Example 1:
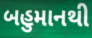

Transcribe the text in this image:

બહુમાનથી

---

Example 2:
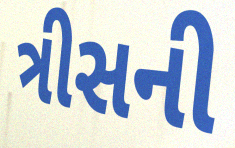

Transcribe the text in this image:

ત્રીસની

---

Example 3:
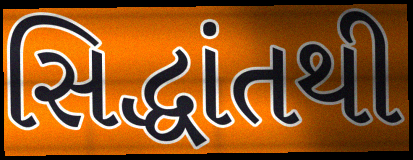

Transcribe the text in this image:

સિદ્ધાંતથી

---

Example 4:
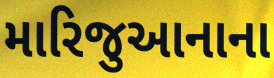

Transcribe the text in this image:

મારિજુઆનાના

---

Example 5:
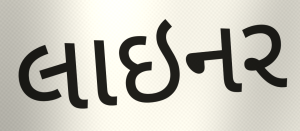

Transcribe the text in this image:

લાઇનર